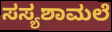
ಸಸ್ಯಶಾಮಲೆ